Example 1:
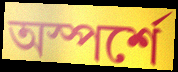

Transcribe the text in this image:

অস্পর্শে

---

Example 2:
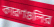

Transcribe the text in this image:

কারণগুলির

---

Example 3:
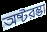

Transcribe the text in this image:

অষ্টরম্ভা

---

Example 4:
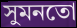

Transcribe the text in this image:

সুমনতো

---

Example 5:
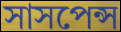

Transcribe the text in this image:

সাসপেন্স